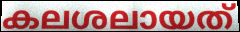
കലശലായത്